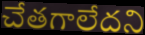
చేతగాలేదని